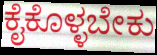
ಕೈಕೊಳ್ಳಬೇಕು